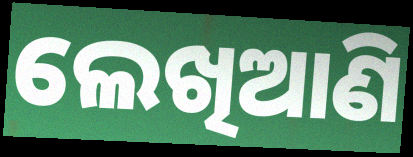
ଲେଖିଆଣି